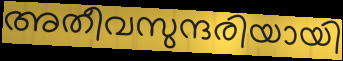
അതീവസുന്ദരിയായി